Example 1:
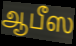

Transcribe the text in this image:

ஆபீஸ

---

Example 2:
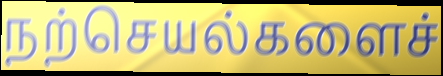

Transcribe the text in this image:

நற்செயல்களைச்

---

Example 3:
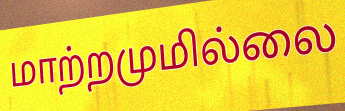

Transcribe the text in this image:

மாற்றமுமில்லை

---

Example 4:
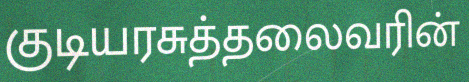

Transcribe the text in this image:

குடியரசுத்தலைவரின்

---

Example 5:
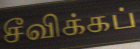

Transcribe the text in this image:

சீவிக்கப்